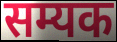
सम्यक